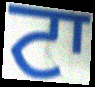
ਟਾ